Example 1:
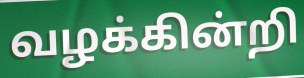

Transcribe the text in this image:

வழக்கின்றி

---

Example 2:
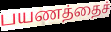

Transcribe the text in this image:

பயணத்தைச்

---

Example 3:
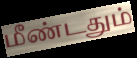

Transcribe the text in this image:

மீண்டதும்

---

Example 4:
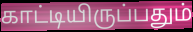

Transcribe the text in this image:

காட்டியிருப்பதும்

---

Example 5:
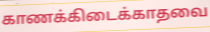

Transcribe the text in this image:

காணக்கிடைக்காதவை